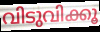
വിടുവിക്കൂ